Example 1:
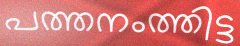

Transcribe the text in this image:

പത്തനംത്തിട്ട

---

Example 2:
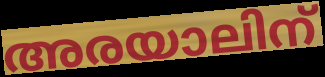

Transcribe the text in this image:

അരയാലിന്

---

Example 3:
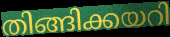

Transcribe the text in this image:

തിങ്ങിക്കയറി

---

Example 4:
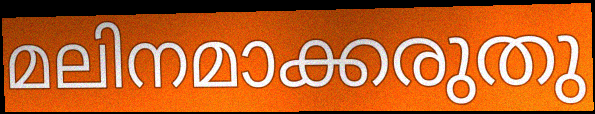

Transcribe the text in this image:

മലിനമാക്കരുതു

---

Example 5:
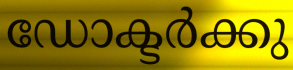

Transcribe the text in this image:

ഡോക്ടർക്കു